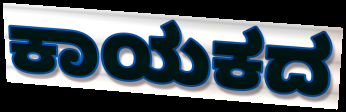
ಕಾಯಕದ